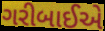
ગરીબાઈએ